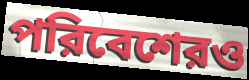
পরিবেশেরও